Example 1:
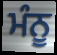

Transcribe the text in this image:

ਮੰਨੂ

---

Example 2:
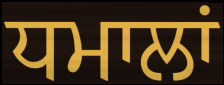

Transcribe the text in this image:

ਧਮਾਲਾਂ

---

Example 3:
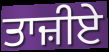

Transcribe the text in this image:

ਤਾਜ਼ੀਏ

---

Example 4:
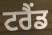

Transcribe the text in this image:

ਟਰੈਂਡ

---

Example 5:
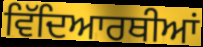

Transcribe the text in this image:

ਵਿੱਦਿਆਰਥੀਆਂ